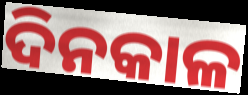
ଦିନକାଳ